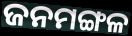
ଜନମଙ୍ଗଳ